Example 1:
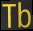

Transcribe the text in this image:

Tb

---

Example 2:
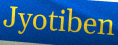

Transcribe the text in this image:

Jyotiben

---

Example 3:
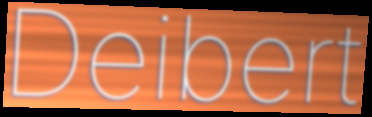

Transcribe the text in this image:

Deibert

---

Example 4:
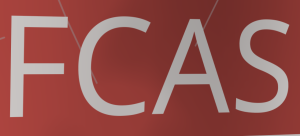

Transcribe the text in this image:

FCAS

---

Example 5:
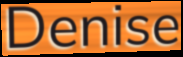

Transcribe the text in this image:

Denise